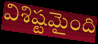
విశిష్టమైంది